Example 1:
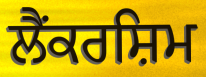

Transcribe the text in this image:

ਲੈਂਕਰਸ਼ਿਮ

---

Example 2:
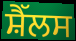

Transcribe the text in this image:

ਸ਼ੈੱਲਸ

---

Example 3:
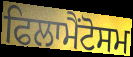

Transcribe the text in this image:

ਫਿਲਾਮੈਂਟੋਸਮ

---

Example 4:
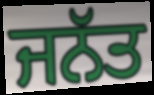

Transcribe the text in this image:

ਜਨੱਤ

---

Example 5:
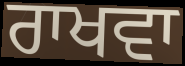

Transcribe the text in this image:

ਰਾਖਵਾ